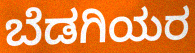
ಬೆಡಗಿಯರ